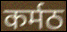
कर्मठ